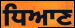
ਧਿਆਣ